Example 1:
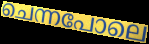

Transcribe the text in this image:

ചെന്നപോലെ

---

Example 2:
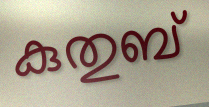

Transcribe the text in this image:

കുതുബ്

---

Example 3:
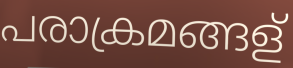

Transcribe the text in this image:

പരാക്രമങ്ങള്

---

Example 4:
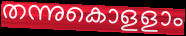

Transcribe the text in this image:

തന്നുകൊളളാം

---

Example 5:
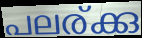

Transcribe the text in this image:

പലര്ക്കു